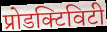
प्रोडक्टिविटी